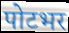
पोटभर